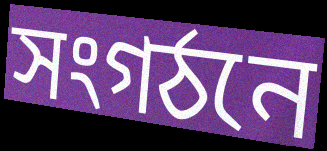
সংগঠনে